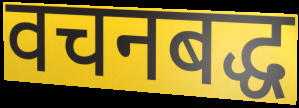
वचनबद्ध